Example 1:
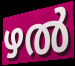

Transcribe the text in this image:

ഴൽ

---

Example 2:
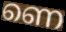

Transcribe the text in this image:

ണെ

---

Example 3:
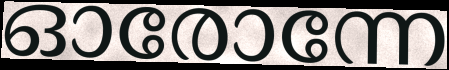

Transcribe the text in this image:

ഓരോന്നേ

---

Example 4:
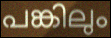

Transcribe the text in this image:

പങ്കിലും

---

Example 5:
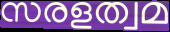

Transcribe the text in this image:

സരളത്വമ